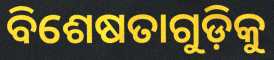
ବିଶେଷତାଗୁଡ଼ିକୁ